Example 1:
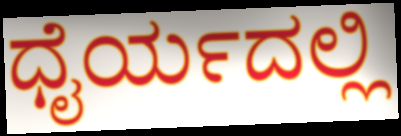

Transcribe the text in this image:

ಧೈರ್ಯದಲ್ಲಿ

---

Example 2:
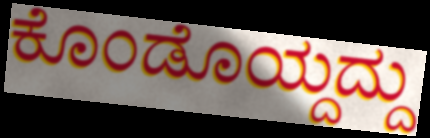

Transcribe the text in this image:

ಕೊಂಡೊಯ್ದದ್ದು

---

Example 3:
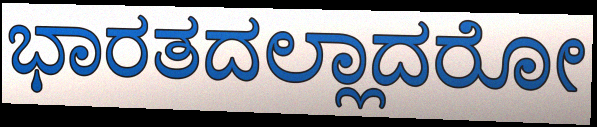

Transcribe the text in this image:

ಭಾರತದಲ್ಲಾದರೋ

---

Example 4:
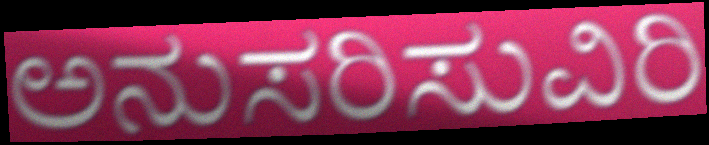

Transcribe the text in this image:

ಅನುಸರಿಸುವಿರಿ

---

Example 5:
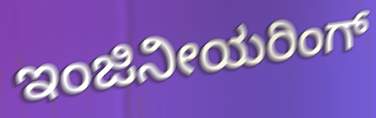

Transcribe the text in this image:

ಇಂಜಿನೀಯರಿಂಗ್